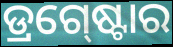
ଡ୍ରଗ୍‍ଷ୍ଟୋର